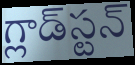
గ్లాడ్‌స్టన్